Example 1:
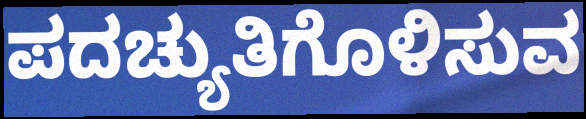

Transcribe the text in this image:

ಪದಚ್ಯುತಿಗೊಳಿಸುವ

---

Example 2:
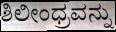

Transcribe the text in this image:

ಶಿಲೀಂಧ್ರವನ್ನು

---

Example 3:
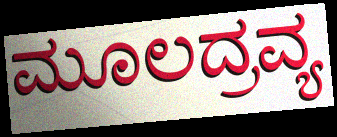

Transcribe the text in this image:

ಮೂಲದ್ರವ್ಯ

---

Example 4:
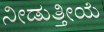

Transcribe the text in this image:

ನೀಡುತ್ತೀಯೆ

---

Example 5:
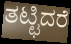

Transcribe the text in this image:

ತಟ್ಟಿದರೆ